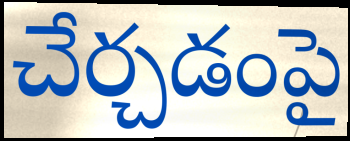
చేర్చడంపై